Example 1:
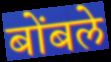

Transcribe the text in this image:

बोंबले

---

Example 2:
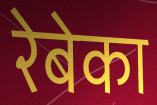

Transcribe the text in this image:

रेबेका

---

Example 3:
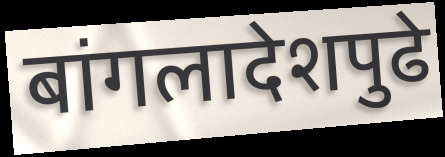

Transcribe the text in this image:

बांगलादेशपुढे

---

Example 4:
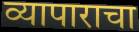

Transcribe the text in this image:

व्यापाराचा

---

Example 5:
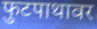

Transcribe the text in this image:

फुटपाथावर